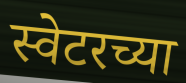
स्वेटरच्या